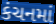
કંચનમાં